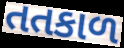
તતકાળ